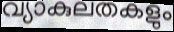
വ്യാകുലതകളും